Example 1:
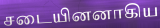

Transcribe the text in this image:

சடையினனாகிய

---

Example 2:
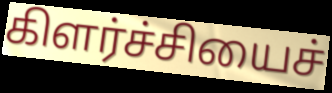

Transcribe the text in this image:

கிளர்ச்சியைச்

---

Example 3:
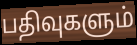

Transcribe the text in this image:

பதிவுகளும்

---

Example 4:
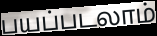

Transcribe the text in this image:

பயப்படலாம்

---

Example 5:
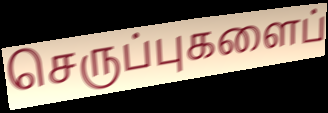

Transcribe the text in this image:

செருப்புகளைப்